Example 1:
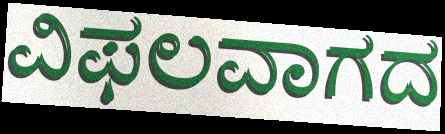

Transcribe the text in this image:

ವಿಫಲವಾಗದ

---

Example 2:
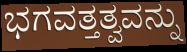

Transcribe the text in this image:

ಭಗವತ್ತತ್ವವನ್ನು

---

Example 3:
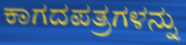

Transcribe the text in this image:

ಕಾಗದಪತ್ರಗಳನ್ನು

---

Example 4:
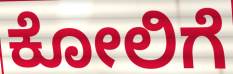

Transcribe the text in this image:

ಕೋಲಿಗೆ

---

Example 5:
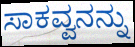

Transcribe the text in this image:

ಸಾಕವ್ವನನ್ನು